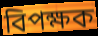
বিপক্ষক